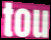
tou